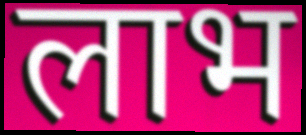
लाभ